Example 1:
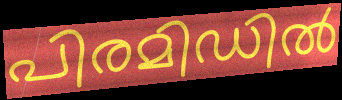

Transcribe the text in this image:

പിരമിഡിൽ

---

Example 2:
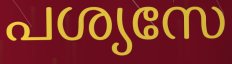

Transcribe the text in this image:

പശ്യസേ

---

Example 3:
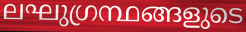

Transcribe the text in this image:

ലഘുഗ്രന്ഥങ്ങളുടെ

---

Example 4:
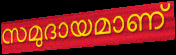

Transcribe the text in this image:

സമുദായമാണ്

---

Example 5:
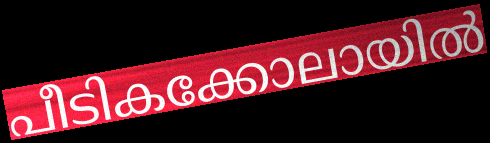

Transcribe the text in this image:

പീടികക്കോലായിൽ